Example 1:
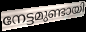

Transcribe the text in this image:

നേട്ടമുണ്ടായി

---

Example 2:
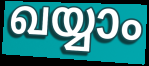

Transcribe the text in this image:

ഖയ്യാം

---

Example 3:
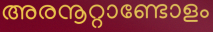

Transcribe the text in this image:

അരനൂറ്റാണ്ടോളം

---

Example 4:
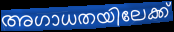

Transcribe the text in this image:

അഗാധതയിലേക്ക്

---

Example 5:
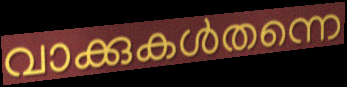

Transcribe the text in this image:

വാക്കുകൾതന്നെ